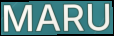
MARU